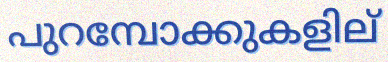
പുറമ്പോക്കുകളില്